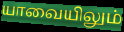
யாவையிலும்